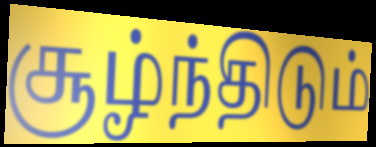
சூழ்ந்திடும்